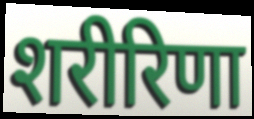
शरीरिणा